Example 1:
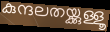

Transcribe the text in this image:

കുന്ദലതയ്ക്കുള്ളൂ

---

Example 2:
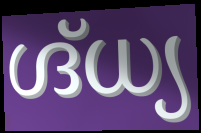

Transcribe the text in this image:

ഗ്ദ്ധ്യ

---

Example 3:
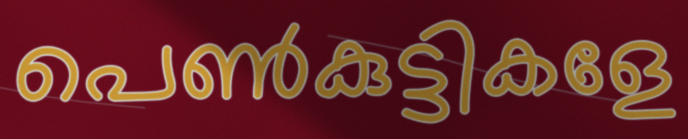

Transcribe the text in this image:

പെൺകുട്ടികളേ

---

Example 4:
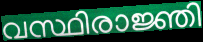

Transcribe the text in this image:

വസ്ഥിരാജ്ഞി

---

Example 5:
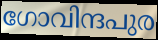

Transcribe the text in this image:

ഗോവിന്ദപുര